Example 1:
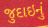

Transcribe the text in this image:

જુદાઇનું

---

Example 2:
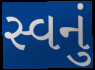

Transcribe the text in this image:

સ્વનું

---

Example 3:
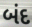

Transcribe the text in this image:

બંદ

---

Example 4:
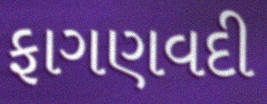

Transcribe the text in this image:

ફાગણવદી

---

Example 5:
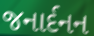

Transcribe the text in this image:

જનાર્દનન